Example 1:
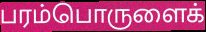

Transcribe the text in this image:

பரம்பொருளைக்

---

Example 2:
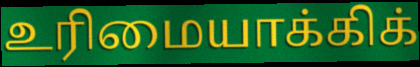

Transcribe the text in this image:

உரிமையாக்கிக்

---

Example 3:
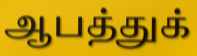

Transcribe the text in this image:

ஆபத்துக்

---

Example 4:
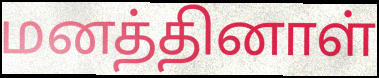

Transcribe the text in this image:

மனத்தினாள்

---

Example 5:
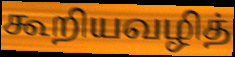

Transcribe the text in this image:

கூறியவழித்